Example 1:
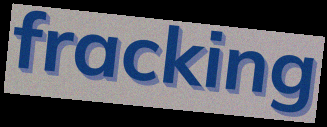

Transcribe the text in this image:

fracking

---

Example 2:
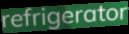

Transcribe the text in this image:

refrigerator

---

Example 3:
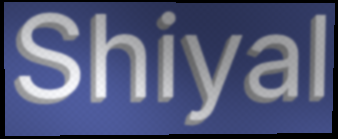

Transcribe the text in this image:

Shiyal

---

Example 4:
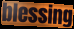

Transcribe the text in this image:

blessing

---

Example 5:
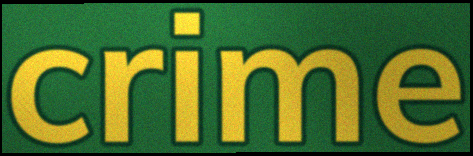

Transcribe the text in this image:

crime